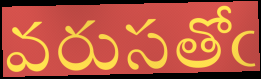
వరుసతోఁ